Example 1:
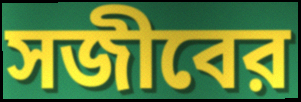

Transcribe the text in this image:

সজীবের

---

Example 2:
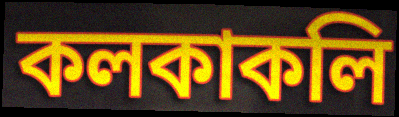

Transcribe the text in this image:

কলকাকলি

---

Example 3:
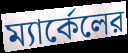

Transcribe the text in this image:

ম্যার্কেলের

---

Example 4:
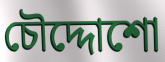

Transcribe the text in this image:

চৌদ্দোশো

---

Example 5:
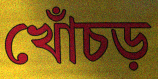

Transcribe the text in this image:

খোঁচড়